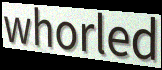
whorled